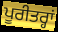
ਪੂਰੀਤਰ੍ਹਾਂ